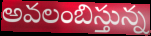
అవలంబిస్తున్న